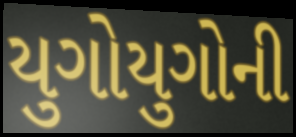
યુગોયુગોની